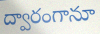
ద్వారంగానూ